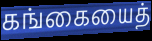
கங்கையைத்